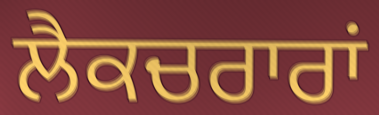
ਲੈਕਚਰਾਰਾਂ